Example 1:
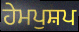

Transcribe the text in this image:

ਹੇਮਪੁਸ਼ਪ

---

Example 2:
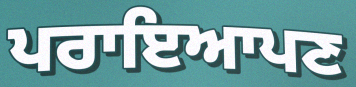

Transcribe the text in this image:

ਪਰਾਇਆਪਣ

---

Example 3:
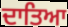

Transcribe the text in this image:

ਦਾਤਿਆ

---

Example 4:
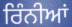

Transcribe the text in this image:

ਰਿੰਨੀਆਂ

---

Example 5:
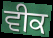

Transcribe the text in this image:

ਵੀਕ